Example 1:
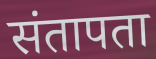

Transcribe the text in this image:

संतापता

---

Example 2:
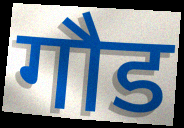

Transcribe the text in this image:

गौड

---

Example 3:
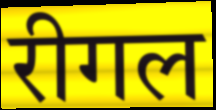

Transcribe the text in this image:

रीगल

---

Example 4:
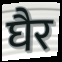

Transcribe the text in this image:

घैर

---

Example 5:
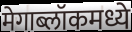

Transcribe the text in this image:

मेगाब्लॉकमध्ये